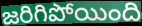
జరిగిపోయింది